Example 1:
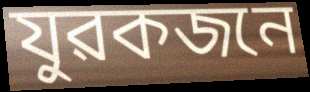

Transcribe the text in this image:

যুৱকজনে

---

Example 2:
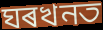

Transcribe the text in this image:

ঘৰখনত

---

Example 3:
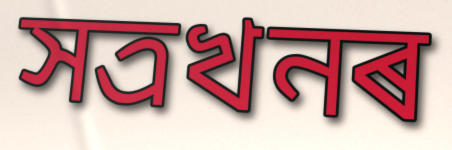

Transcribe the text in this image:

সত্ৰখনৰ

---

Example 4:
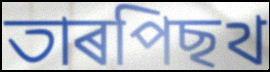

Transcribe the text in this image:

তাৰপিছথ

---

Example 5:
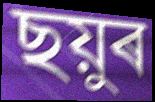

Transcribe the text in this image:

ছয়ুৰ